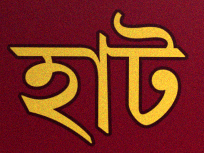
হাট